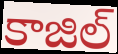
కాజిల్